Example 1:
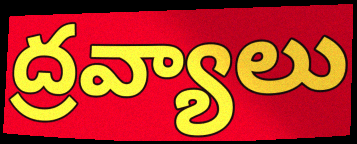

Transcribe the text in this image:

ద్రవ్యాలు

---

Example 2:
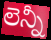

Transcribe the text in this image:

లెన్నీ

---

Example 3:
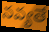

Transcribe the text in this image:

నవ్యతే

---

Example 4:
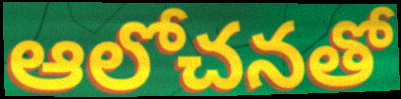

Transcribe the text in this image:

ఆలోచనతో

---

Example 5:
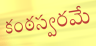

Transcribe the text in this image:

కంఠస్వరమే